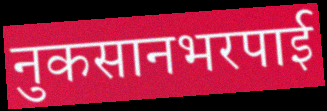
नुकसानभरपाई